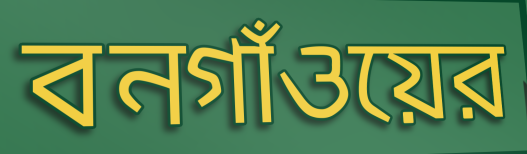
বনগাঁওয়ের